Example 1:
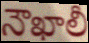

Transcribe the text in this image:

నౌఖాలీ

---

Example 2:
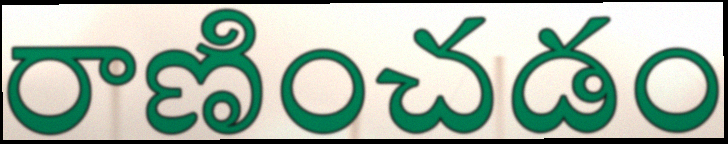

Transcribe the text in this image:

రాణించడం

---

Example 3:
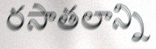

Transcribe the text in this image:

రసాతలాన్ని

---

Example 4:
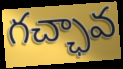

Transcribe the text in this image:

గచ్ఛావ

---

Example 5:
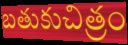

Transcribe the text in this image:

బతుకుచిత్రం